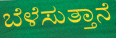
ಬೆಳೆಸುತ್ತಾನೆ